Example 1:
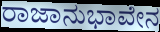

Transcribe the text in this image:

ರಾಜಾನುಭಾವೇನ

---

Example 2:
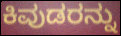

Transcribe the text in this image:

ಕಿವುಡರನ್ನು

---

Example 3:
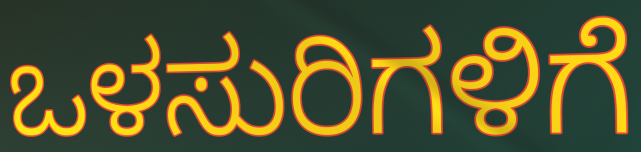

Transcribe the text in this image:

ಒಳಸುರಿಗಳಿಗೆ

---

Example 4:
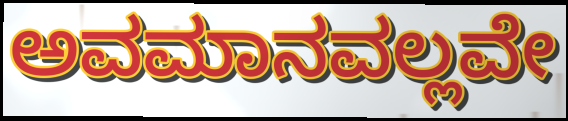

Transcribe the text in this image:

ಅವಮಾನವಲ್ಲವೇ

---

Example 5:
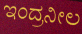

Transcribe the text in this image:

ಇಂದ್ರನೀಲ